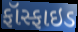
ફૉસ્ફાઇડ